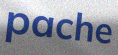
pache